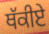
ਥੱਕੀਏ